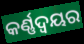
କର୍ଣ୍ଣଦ୍ୱୟର